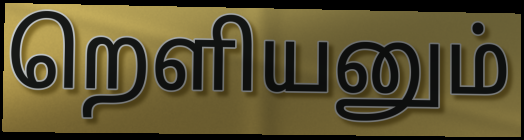
றெளியனும்